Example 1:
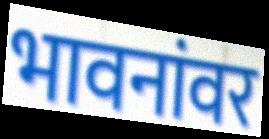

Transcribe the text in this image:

भावनांवर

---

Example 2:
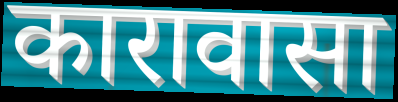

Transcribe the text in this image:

कारावासा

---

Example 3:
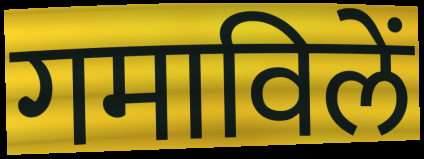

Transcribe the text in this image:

गमाविलें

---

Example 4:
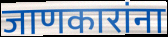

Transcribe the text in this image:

जाणकारांना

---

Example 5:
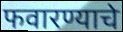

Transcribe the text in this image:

फवारण्याचे